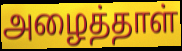
அழைத்தாள்